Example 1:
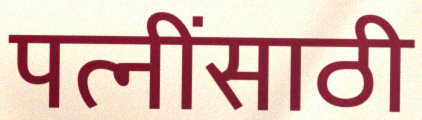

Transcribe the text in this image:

पत्नींसाठी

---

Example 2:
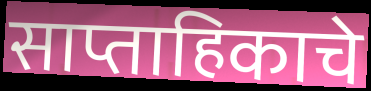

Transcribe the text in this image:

साप्ताहिकाचे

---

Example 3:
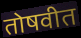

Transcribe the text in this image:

तोषवीत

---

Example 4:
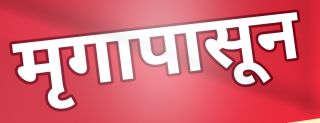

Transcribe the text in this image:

मृगापासून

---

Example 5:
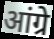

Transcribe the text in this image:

आंग्रे